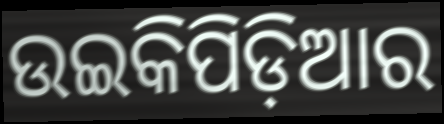
ଉଇକିପିଡ଼ିଆର